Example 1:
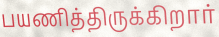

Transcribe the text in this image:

பயணித்திருக்கிறார்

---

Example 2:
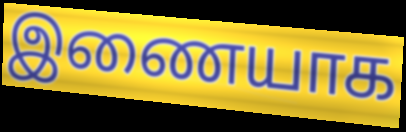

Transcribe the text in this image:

இணையாக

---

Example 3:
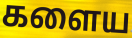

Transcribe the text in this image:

களைய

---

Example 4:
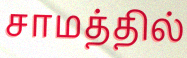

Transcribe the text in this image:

சாமத்தில்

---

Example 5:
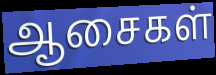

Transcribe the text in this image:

ஆசைகள்